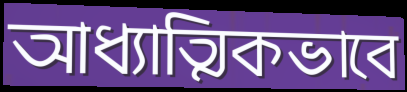
আধ্যাত্মিকভাবে